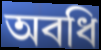
অবধি